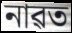
নাৱত